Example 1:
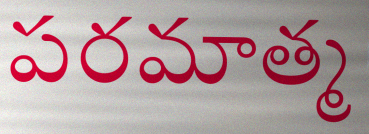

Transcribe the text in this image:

పరమాత్మ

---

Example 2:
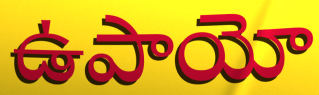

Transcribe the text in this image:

ఉపాయో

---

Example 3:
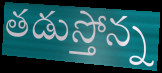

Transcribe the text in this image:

తడుస్తోన్న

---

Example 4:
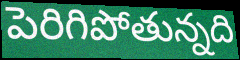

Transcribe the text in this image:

పెరిగిపోతున్నది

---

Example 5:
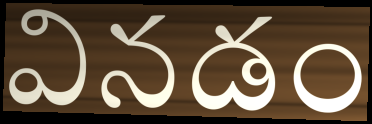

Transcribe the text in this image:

వినడం